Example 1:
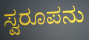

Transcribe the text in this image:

ಸ್ವರೂಪನು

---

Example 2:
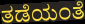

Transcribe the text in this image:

ತಡೆಯಂತೆ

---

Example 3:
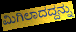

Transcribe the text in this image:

ಮಿಗಿಲಾದದ್ದನ್ನು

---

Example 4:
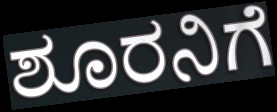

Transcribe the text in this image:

ಶೂರನಿಗೆ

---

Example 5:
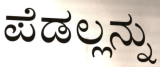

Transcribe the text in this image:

ಪೆಡಲ್ಲನ್ನು